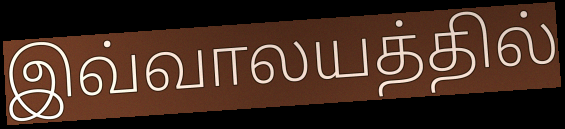
இவ்வாலயத்தில்